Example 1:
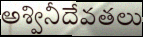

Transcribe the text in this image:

అశ్వినీదేవతలు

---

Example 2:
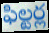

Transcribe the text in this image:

ఫిల్టర్ల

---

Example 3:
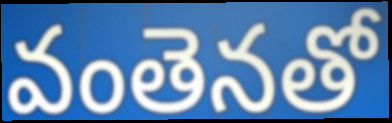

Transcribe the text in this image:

వంతెనతో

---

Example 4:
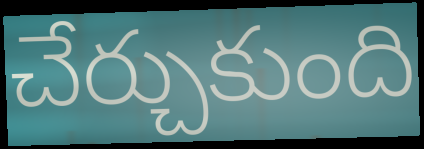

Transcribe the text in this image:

చేర్చుకుంది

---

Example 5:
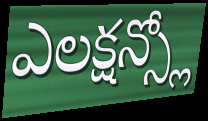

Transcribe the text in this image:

ఎలక్షన్స్లో